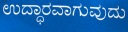
ಉದ್ಧಾರವಾಗುವುದು